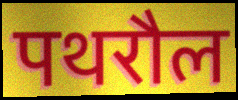
पथरौल